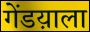
गेंडय़ाला